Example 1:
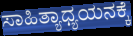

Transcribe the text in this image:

ಸಾಹಿತ್ಯಾಧ್ಯಯನಕ್ಕೆ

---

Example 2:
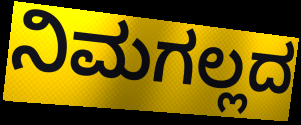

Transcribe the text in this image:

ನಿಮಗಲ್ಲದ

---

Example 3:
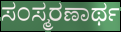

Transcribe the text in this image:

ಸಂಸ್ಮರಣಾರ್ಥ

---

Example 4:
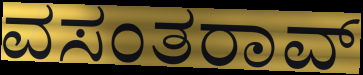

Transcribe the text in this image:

ವಸಂತರಾವ್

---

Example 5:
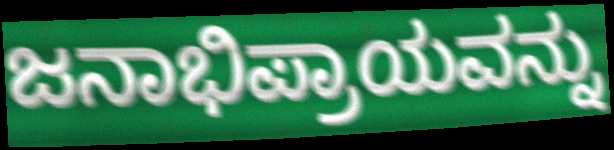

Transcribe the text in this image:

ಜನಾಭಿಪ್ರಾಯವನ್ನು